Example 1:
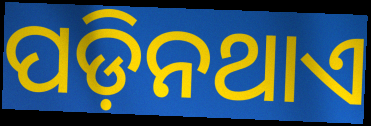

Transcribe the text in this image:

ପଡ଼ିନଥାଏ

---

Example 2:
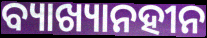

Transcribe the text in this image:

ବ୍ୟାଖ୍ୟାନହୀନ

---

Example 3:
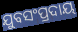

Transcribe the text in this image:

ଯୁବସଂପ୍ରଦାୟ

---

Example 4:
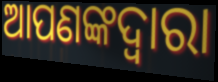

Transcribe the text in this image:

ଆପଣଙ୍କଦ୍ଵାରା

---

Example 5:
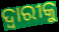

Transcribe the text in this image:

ଦ୍ଵାରୀକୁ